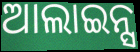
ଆଲାଇନ୍ସ